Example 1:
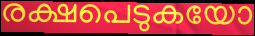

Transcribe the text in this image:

രക്ഷപെടുകയോ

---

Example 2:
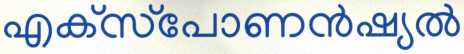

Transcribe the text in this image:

എക്‌സ്‌പോണൻഷ്യൽ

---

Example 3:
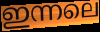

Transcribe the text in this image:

ഇന്നലെ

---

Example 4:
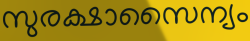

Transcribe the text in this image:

സുരക്ഷാസൈന്യം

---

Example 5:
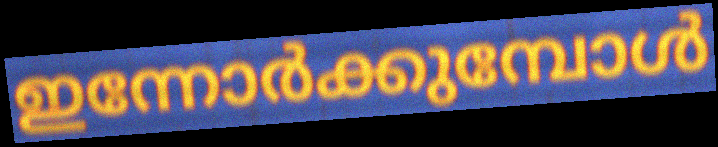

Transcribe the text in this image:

ഇന്നോർക്കുമ്പോൾ